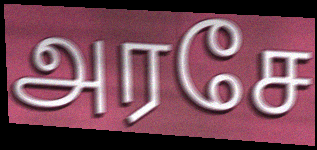
அரசே